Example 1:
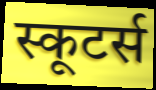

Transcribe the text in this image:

स्‍कूटर्स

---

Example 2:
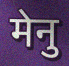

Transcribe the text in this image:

मेनु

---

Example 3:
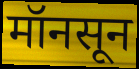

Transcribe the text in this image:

मॉनसून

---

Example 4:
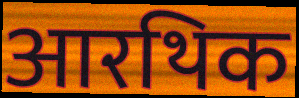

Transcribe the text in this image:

आरथिक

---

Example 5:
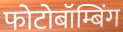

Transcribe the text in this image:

फोटोबॉम्बिंग